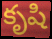
కృషి